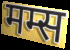
मम्स